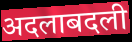
अदलाबदली